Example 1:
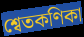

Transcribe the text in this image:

শ্বেতকণিকা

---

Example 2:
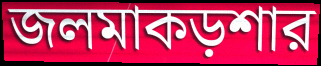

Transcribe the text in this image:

জলমাকড়শার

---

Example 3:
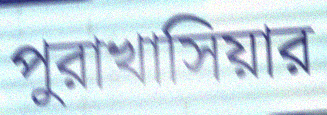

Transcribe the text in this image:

পুরাখাসিয়ার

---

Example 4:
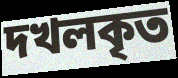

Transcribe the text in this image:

দখলকৃত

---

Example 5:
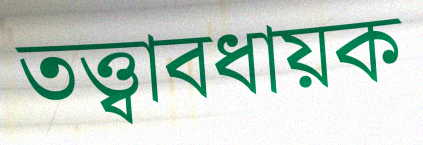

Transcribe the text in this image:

তত্ত্বাবধায়ক